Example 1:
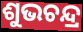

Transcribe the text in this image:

ଶୁଭଚନ୍ଦ୍ର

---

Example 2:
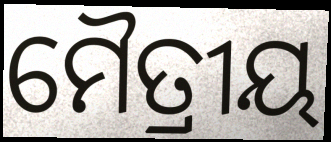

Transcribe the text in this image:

ମୈତ୍ରୀୟ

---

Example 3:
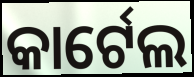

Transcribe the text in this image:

କାର୍ଟେଲ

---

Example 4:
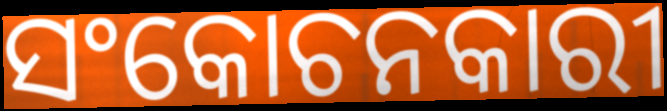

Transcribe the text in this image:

ସଂକୋଚନକାରୀ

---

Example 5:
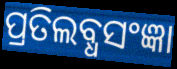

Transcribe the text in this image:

ପ୍ରତିଲବ୍ଧସଂଜ୍ଞା